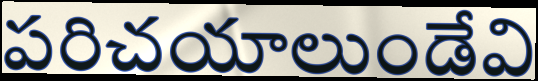
పరిచయాలుండేవి